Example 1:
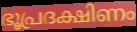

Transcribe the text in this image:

ഭൂപ്രദക്ഷിണം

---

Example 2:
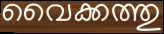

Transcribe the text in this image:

വൈക്കത്തു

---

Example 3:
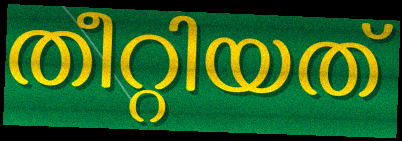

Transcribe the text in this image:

തീറ്റിയത്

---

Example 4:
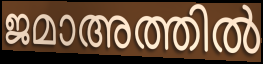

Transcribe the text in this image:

ജമാഅത്തിൽ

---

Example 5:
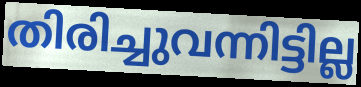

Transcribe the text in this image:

തിരിച്ചുവന്നിട്ടില്ല